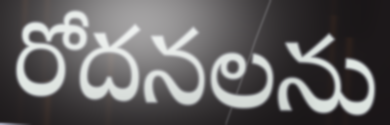
రోదనలను